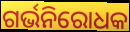
ଗର୍ଭନିରୋଧକ